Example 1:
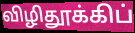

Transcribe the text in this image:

விழிதூக்கிப்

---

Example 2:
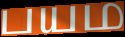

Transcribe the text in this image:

பயம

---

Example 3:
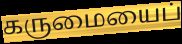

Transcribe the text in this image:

கருமையைப்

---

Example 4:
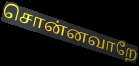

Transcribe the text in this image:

சொன்னவாறே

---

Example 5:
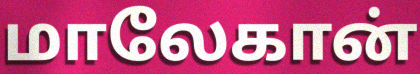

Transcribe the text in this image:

மாலேகான்